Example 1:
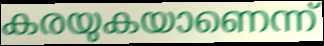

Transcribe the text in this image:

കരയുകയാണെന്ന്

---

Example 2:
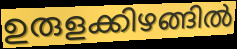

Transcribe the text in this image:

ഉരുളക്കിഴങ്ങിൽ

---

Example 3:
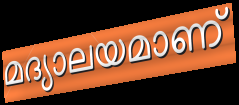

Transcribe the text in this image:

മദ്യാലയമാണ്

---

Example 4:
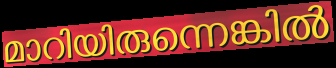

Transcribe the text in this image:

മാറിയിരുന്നെങ്കിൽ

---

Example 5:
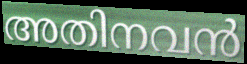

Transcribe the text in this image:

അതിനവൻ